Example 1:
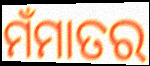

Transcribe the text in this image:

ମଁମାତର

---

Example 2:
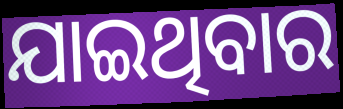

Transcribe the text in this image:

ଯାଇଥିବାର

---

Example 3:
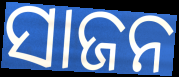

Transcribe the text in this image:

ସାଜନ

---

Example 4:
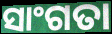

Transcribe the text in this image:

ସାଂଗତା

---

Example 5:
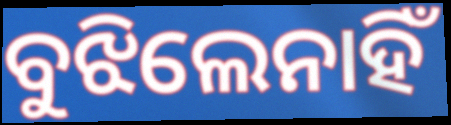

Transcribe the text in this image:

ବୁଝିଲେନାହିଁ